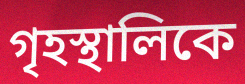
গৃহস্থালিকে